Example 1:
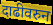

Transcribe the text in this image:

दाढीवरुन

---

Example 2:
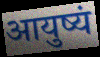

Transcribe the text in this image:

आयुष्यं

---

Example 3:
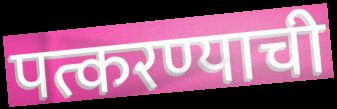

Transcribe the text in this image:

पत्करण्याची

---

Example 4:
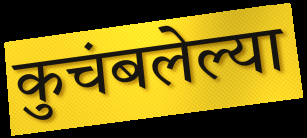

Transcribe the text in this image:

कुचंबलेल्या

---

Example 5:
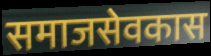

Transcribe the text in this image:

समाजसेवकास